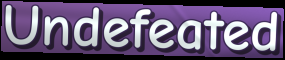
Undefeated